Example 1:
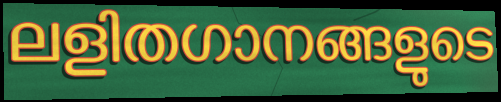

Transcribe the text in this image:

ലളിതഗാനങ്ങളുടെ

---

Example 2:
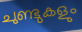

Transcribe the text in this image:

ചുണ്ടുകളും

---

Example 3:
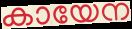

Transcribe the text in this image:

കായേന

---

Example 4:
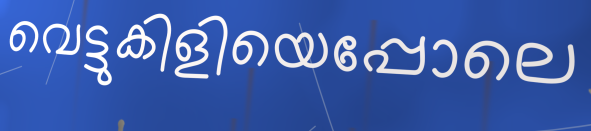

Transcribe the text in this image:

വെട്ടുകിളിയെപ്പോലെ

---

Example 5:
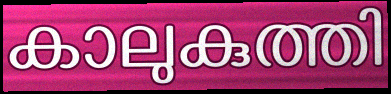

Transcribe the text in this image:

കാലുകുത്തി